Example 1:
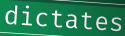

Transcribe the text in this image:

dictates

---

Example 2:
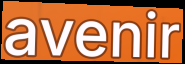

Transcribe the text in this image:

avenir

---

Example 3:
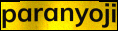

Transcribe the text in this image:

paranyoji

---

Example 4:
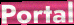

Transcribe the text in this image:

Portal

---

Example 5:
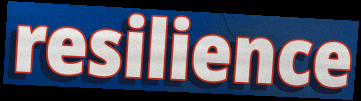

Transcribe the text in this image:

resilience